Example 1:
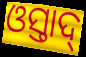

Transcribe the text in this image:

ଓସ୍ତାଦ୍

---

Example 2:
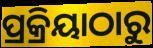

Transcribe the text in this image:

ପ୍ରକ୍ରିୟାଠାରୁ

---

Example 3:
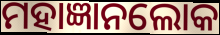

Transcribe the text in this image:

ମହାଜ୍ଞାନଲୋକ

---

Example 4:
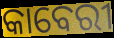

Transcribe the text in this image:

କାବେରୀ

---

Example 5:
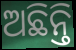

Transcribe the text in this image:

ଅଛିନ୍ତି